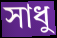
সাধু